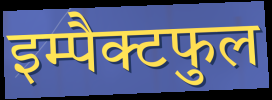
इम्पैक्टफुल